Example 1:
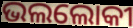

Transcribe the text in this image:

ଭଲଲୋକୀ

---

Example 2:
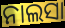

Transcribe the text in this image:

ନାଲସା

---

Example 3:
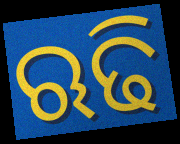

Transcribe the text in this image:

ଋଢି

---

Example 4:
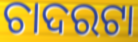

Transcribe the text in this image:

ଚାଦରଟା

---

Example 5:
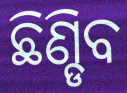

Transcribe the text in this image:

ଛିଣ୍ଡିବ